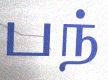
பந்